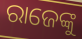
ରାଜେଙ୍କୁ